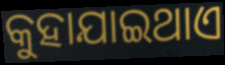
କୁହାଯାଇଥାଏ